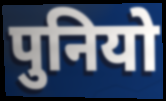
पुनियो